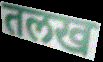
तलख